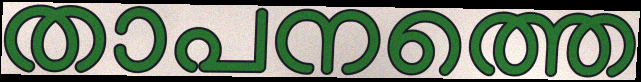
താപനത്തെ